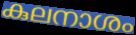
കുലനാശം